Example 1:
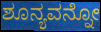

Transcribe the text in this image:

ಶೂನ್ಯವನ್ನೋ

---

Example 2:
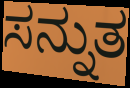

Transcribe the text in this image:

ಸನ್ನುತ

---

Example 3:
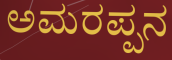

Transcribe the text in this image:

ಅಮರಪ್ಪನ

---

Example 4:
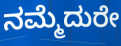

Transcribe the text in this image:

ನಮ್ಮೆದುರೇ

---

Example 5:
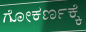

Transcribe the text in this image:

ಗೋಕರ್ಣಕ್ಕೆ